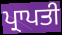
ਪ੍ਰਾਪਤੀ